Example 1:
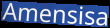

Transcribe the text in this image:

Amensisa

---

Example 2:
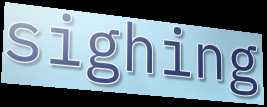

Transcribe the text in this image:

sighing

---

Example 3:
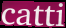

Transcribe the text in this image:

catti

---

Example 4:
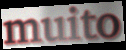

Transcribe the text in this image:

muito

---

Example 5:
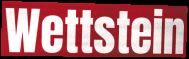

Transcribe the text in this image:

Wettstein